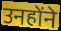
उनहोंने